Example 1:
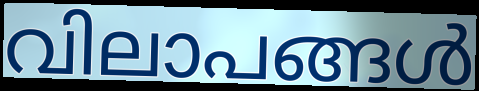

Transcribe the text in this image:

വിലാപങ്ങൾ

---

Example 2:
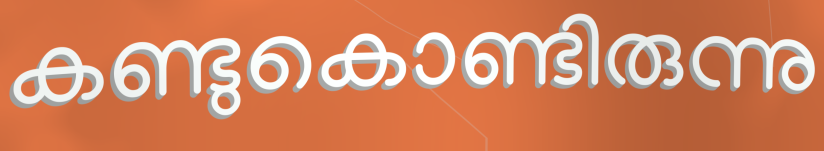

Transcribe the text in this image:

കണ്ടുകൊണ്ടിരുന്നു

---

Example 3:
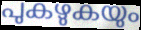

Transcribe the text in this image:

പുകഴുകയും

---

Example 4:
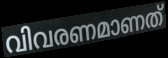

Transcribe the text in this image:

വിവരണമാണത്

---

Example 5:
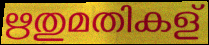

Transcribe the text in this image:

ഋതുമതികള്